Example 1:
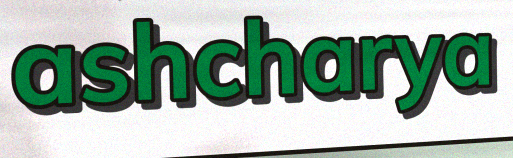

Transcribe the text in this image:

ashcharya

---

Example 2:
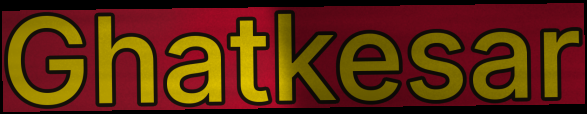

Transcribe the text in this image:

Ghatkesar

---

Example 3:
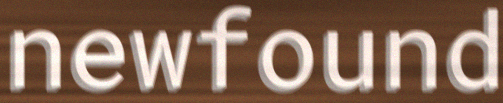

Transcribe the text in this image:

newfound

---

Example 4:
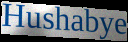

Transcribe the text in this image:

Hushabye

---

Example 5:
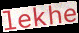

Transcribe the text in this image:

lekhe